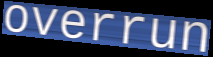
overrun